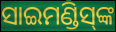
ସାଇମଣ୍ଡିସ୍‍ଙ୍କ